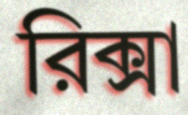
রিক্সা